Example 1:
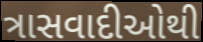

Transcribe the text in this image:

ત્રાસવાદીઓથી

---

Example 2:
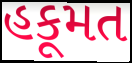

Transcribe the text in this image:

હકૂમત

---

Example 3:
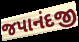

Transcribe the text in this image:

જપાનંદજી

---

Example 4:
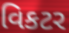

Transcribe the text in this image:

વિકટર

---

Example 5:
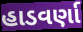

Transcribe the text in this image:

હાડવર્ણા